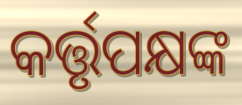
କର୍ତ୍ତୃପକ୍ଷଙ୍କ